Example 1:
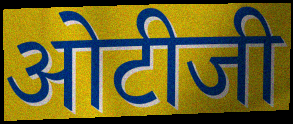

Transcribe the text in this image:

ओटीजी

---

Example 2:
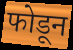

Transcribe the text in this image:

फोडून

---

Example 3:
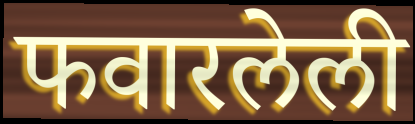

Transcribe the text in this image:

फवारलेली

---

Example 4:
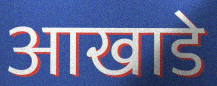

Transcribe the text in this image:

आखाडे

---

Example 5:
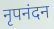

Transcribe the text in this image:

नृपनंदन